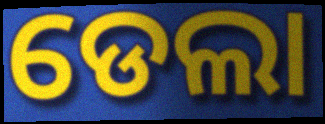
ଡେଲା